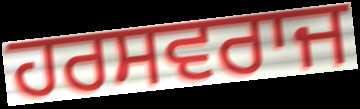
ਹਰਸਵਰਾਜ